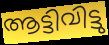
ആട്ടിവിട്ടു